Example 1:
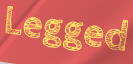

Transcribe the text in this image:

Legged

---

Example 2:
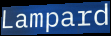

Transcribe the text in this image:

Lampard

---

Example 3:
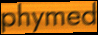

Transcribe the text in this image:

phymed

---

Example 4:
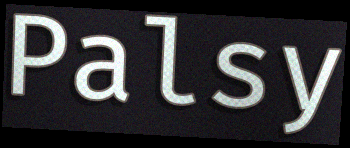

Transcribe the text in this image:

Palsy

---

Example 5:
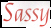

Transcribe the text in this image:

Sassy